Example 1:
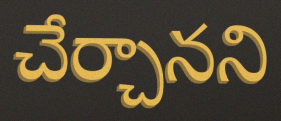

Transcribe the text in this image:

చేర్చానని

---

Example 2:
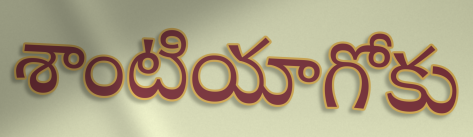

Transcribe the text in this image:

శాంటియాగోకు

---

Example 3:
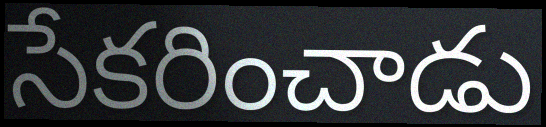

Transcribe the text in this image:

సేకరించాడు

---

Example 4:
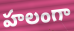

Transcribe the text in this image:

హలంగా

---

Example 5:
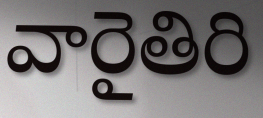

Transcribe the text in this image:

వారైతిరి